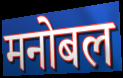
मनोबल